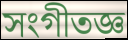
সংগীতজ্ঞ